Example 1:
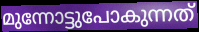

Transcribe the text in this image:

മുന്നോട്ടുപോകുന്നത്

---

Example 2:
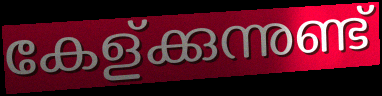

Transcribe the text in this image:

കേള്ക്കുന്നുണ്ട്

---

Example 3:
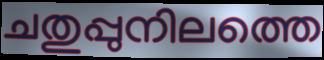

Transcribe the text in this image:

ചതുപ്പുനിലത്തെ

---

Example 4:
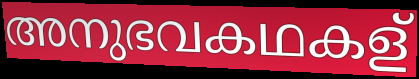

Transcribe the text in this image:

അനുഭവകഥകള്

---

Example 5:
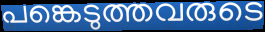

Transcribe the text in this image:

പങ്കെടുത്തവരുടെ